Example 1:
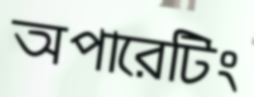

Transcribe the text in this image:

অপারেটিং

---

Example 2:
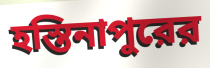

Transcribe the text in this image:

হস্তিনাপুরের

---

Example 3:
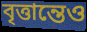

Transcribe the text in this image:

বৃত্তান্তেও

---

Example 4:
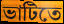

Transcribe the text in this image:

ভাটিতে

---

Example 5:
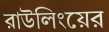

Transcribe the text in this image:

রাউলিংয়ের